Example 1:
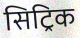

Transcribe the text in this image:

सिट्रिक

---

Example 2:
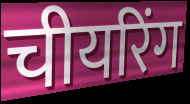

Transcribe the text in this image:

चीयरिंग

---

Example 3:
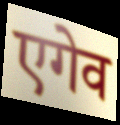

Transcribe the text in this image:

एगेव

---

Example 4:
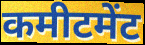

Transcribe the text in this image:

कमीटमेंट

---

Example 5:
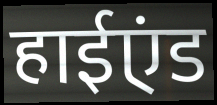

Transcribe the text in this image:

हाईएंड